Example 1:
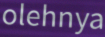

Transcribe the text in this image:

olehnya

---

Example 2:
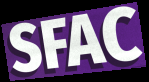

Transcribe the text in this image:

SFAC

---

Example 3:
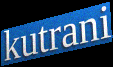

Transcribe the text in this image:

kutrani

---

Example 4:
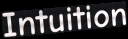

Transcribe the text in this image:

Intuition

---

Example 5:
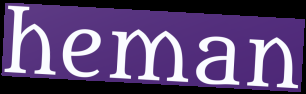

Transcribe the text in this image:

heman